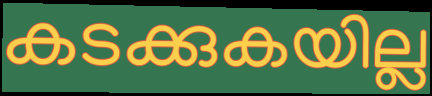
കടക്കുകയില്ല